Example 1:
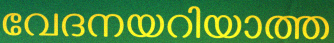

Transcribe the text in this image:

വേദനയറിയാത്ത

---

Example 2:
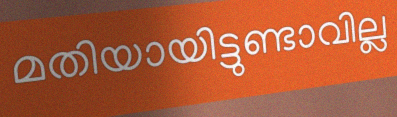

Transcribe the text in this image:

മതിയായിട്ടുണ്ടാവില്ല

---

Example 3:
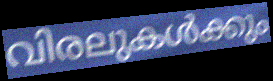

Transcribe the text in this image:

വിരലുകൾക്കും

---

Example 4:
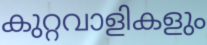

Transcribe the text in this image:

കുറ്റവാളികളും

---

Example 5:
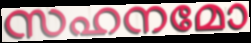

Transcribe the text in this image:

സഹനമോ